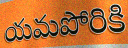
యమపోరికి